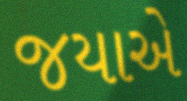
જયાએ